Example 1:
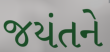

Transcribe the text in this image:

જયંતને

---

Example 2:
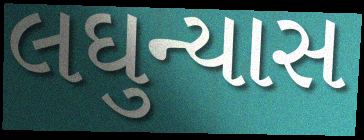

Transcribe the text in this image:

લઘુન્યાસ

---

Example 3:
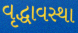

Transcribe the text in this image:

વૃદ્ધાવસ્થા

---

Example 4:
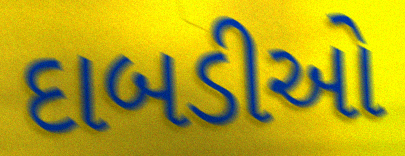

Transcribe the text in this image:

દાબડીઓ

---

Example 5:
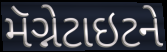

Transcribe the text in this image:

મૅગ્નેટાઇટને